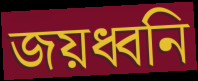
জয়ধ্বনি